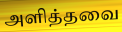
அளித்தவை